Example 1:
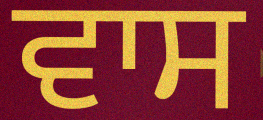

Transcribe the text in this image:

ਵਾਸ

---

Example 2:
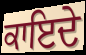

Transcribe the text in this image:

ਕਾਇਦੇ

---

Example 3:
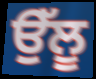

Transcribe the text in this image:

ਉੱਲੂ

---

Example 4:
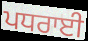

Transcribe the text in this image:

ਪਧਰਾਈ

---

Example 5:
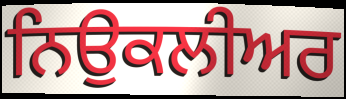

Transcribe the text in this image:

ਨਿਉਕਲੀਅਰ